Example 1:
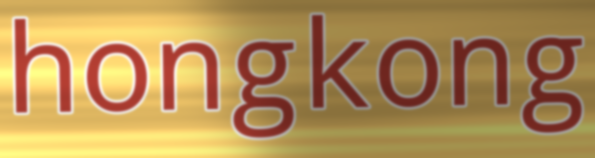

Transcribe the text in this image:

hongkong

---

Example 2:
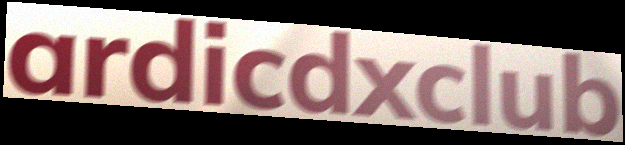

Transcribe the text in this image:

ardicdxclub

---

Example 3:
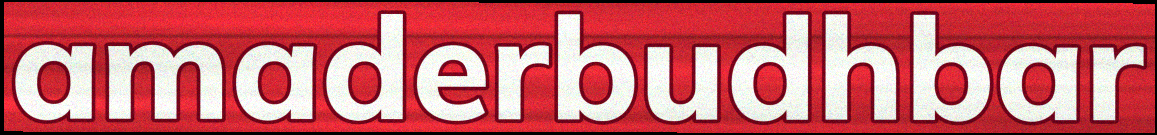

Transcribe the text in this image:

amaderbudhbar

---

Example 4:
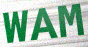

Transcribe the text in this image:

WAM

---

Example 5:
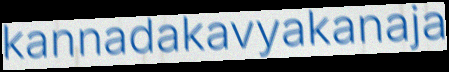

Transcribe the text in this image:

kannadakavyakanaja